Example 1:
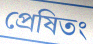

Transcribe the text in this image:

প্রেষিতং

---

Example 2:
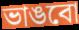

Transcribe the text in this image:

ভাঙবো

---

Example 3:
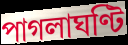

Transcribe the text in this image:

পাগলাঘণ্টি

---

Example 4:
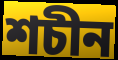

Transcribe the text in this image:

শচীন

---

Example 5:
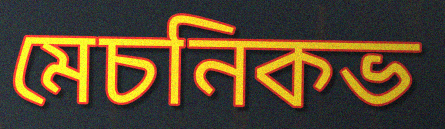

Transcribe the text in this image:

মেচনিকভ